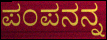
ಪಂಪನನ್ನ